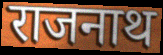
राजनाथ